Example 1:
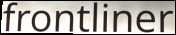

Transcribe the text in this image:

frontliner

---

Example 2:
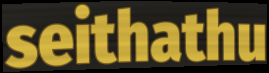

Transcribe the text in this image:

seithathu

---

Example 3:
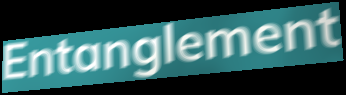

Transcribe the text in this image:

Entanglement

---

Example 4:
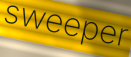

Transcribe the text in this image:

sweeper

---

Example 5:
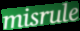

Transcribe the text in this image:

misrule